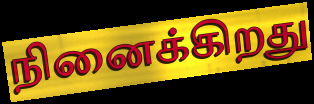
நினைக்கிறது